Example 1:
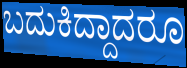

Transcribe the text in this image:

ಬದುಕಿದ್ದಾದರೂ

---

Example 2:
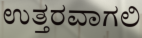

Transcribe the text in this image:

ಉತ್ತರವಾಗಲಿ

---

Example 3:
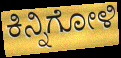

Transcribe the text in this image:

ಕಿನ್ನಿಗೋಳಿ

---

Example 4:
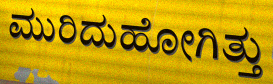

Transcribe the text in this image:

ಮುರಿದುಹೋಗಿತ್ತು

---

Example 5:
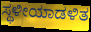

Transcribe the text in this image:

ಸ್ಥಳೀಯಾಡಳಿತ